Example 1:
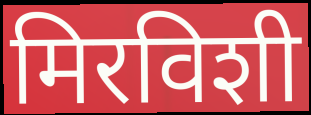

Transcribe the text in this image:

मिरविशी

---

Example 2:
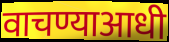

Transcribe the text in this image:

वाचण्याआधी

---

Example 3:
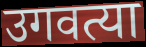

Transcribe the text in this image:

उगवत्या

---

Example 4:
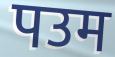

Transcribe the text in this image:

पउम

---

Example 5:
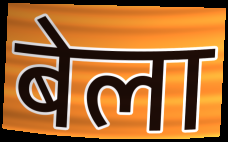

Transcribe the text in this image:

बेला